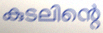
കുടലിന്റെ